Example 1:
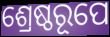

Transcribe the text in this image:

ଶ୍ରେଷ୍ଠରୂପେ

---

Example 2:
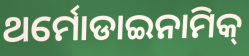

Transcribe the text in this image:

ଥର୍ମୋଡାଇନାମିକ୍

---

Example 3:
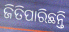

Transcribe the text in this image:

ଜିତିପାରିଛନ୍ତି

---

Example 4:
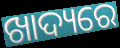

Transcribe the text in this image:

ଖାଦ୍ୟରେ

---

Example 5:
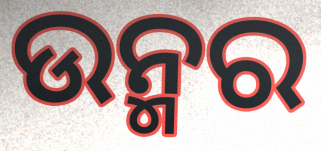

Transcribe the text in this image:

ଉନ୍ମର